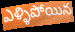
ఎళ్ళిపోయిన